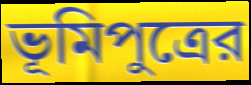
ভূমিপুত্রের